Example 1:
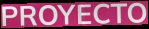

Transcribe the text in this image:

PROYECTO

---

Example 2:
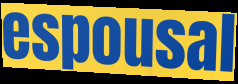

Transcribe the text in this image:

espousal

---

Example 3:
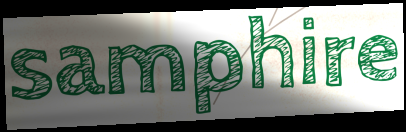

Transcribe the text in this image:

samphire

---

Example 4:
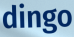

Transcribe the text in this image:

dingo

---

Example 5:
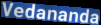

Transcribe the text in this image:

Vedananda